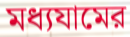
মধ্যযামের